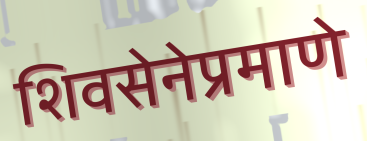
शिवसेनेप्रमाणे